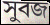
সুবজ